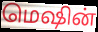
மெஷின்